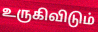
உருகிவிடும்